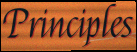
Principles